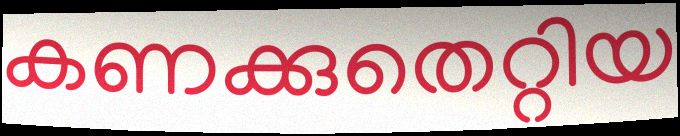
കണക്കുതെറ്റിയ